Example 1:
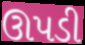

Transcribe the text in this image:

ઊપડી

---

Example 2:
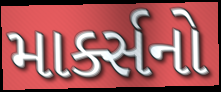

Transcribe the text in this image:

માર્ક્સનો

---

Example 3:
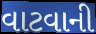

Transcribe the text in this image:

વાટવાની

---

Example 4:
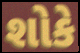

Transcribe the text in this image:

શોકે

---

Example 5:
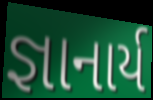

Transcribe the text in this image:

જ્ઞાનાર્ય